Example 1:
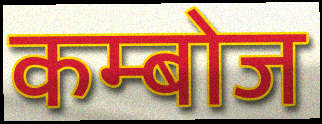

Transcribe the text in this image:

कम्बोज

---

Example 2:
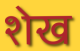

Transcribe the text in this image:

शेख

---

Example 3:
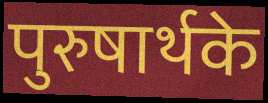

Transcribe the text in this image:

पुरुषार्थके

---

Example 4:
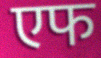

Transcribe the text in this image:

एफ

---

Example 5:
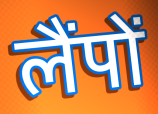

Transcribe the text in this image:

लैंपों